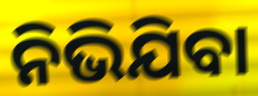
ନିଭିଯିବା